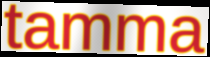
tamma